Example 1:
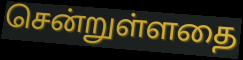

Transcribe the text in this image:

சென்றுள்ளதை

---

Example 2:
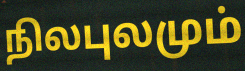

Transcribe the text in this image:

நிலபுலமும்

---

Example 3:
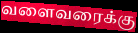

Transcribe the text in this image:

வளைவரைக்கு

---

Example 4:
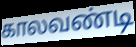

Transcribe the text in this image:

காலவண்டி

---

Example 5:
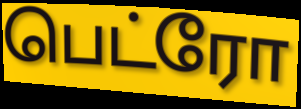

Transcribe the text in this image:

பெட்ரோ